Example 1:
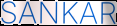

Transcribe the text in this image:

SANKAR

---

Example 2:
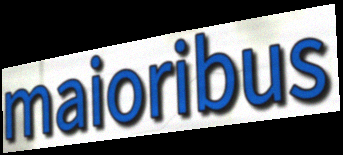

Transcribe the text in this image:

maioribus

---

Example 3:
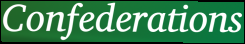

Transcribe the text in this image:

Confederations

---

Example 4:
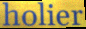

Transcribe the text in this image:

holier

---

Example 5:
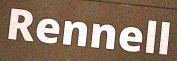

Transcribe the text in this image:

Rennell